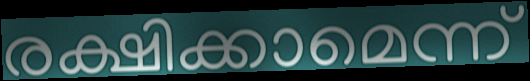
രക്ഷിക്കാമെന്ന്